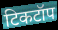
टिकटॉप